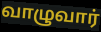
வாழுவார்